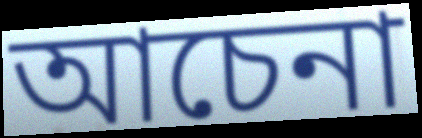
আচেনা